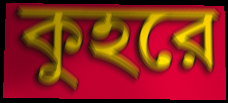
কুহরে